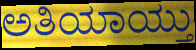
ಅತಿಯಾಯ್ತು